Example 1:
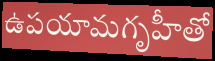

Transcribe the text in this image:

ఉపయామగృహీతో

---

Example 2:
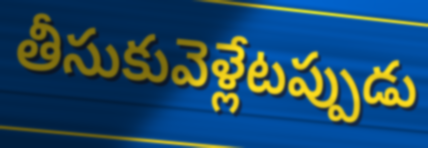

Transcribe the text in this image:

తీసుకువెళ్లేటప్పుడు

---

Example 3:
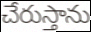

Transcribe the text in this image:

చేరుస్తాను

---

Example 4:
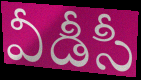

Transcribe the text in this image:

వీడీసీ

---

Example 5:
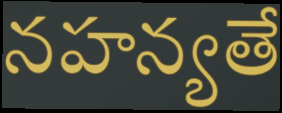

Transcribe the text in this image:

నహన్యతే